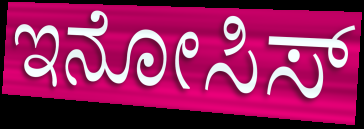
ಇನೋಸಿಸ್